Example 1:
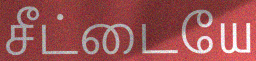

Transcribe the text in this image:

சீட்டையே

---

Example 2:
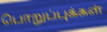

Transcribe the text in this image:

பொறுப்புக்கள்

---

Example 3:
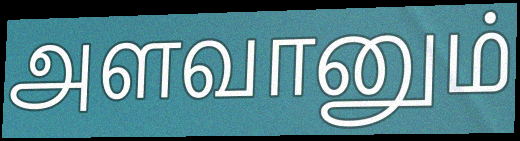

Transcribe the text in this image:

அளவானும்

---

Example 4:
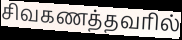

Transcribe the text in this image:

சிவகணத்தவரில்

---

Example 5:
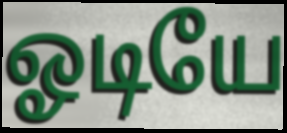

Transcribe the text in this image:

ஓடியே